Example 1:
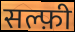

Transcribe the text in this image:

सल्फ़ी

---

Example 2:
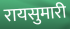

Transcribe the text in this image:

रायसुमारी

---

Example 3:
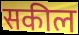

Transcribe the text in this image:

सकील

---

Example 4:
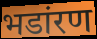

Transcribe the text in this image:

भडांरण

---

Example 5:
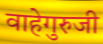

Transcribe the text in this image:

वाहेगुरुजी